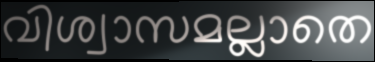
വിശ്വാസമല്ലാതെ